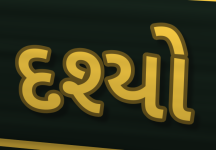
દશ્યો